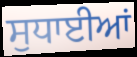
ਸੁਧਾਈਆਂ